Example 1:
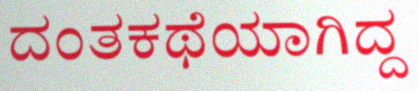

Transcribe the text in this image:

ದಂತಕಥೆಯಾಗಿದ್ದ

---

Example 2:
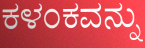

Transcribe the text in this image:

ಕಳಂಕವನ್ನು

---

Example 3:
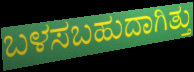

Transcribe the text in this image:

ಬಳಸಬಹುದಾಗಿತ್ತು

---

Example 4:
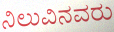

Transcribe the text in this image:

ನಿಲುವಿನವರು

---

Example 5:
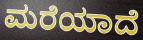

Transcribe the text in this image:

ಮರೆಯಾದೆ